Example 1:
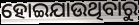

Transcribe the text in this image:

ହୋଇଯାଉଥିବାରୁ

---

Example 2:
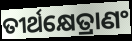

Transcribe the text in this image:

ତୀର୍ଥକ୍ଷେତ୍ରାଣଂ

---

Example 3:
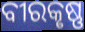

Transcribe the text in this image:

ବୀରକୃଷ୍ଣ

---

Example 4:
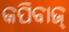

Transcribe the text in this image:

କପିବାଜ୍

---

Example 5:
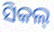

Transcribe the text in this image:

ସିକଲ୍